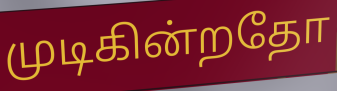
முடிகின்றதோ